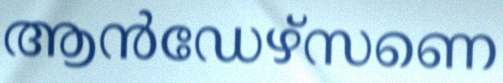
ആൻഡേഴ്സണെ